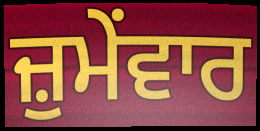
ਜ਼ੁਮੇਂਵਾਰ